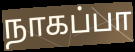
நாகப்பா